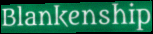
Blankenship